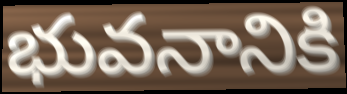
భువనానికి